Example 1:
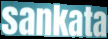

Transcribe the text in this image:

sankata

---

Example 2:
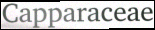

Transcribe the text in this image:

Capparaceae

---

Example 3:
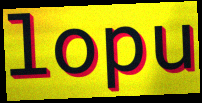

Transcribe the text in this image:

lopu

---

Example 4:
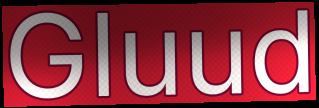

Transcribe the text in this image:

Gluud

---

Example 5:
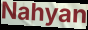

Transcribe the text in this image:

Nahyan